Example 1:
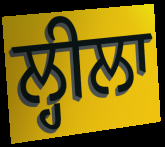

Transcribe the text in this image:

ਲ੍ਹੀਲਾ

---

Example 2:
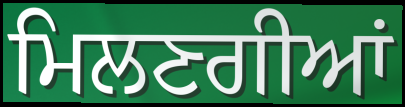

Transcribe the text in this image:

ਮਿਲਣਗੀਆਂ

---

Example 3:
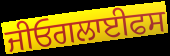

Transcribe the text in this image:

ਜੀਓਗਲਾਈਫਸ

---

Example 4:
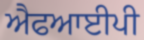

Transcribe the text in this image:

ਐਫਆਈਪੀ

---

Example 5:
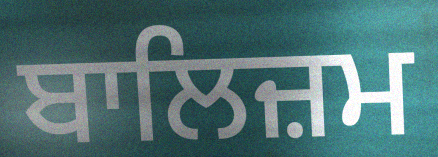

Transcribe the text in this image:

ਬਾਲਿਜ਼ਮ